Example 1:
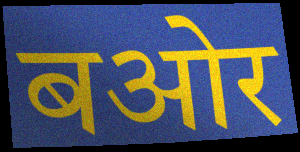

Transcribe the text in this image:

बओर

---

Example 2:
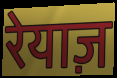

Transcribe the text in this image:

रेयाज़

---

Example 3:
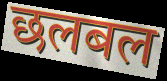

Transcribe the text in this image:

छलबल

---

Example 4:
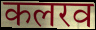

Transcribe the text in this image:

कलरव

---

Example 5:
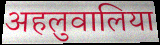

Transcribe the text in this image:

अहलुवालिया